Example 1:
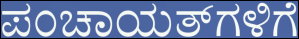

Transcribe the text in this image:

ಪಂಚಾಯತ್‌ಗಳಿಗೆ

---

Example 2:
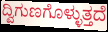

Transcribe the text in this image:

ದ್ವಿಗುಣಗೊಳ್ಳುತ್ತದೆ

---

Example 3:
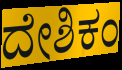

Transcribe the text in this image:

ದೇಶಿಕಂ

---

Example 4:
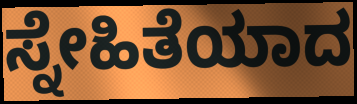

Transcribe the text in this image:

ಸ್ನೇಹಿತೆಯಾದ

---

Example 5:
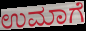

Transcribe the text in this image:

ಉಮಾಗೆ